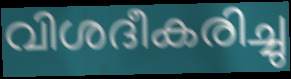
വിശദീകരിച്ചു